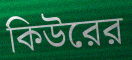
কিউরের